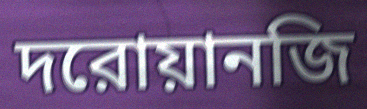
দরোয়ানজি